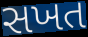
સખત